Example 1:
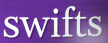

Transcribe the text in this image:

swifts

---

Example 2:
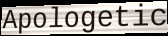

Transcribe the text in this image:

Apologetic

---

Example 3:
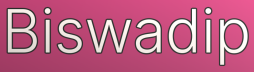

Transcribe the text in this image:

Biswadip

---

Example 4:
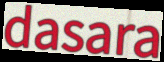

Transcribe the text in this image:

dasara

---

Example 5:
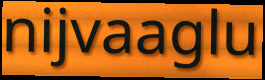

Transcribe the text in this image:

nijvaaglu